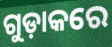
ଗୁଡ଼ାକରେ